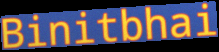
Binitbhai